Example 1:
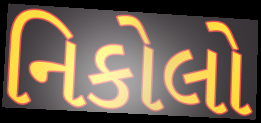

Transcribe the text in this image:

નિકોલો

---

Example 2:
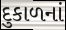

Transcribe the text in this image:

દુકાળનાં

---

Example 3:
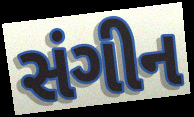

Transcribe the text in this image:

સંગીન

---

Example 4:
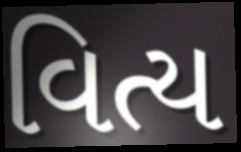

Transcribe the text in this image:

વિત્ય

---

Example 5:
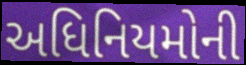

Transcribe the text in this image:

અધિનિયમોની